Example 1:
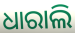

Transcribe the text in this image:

ଧାରାଲି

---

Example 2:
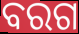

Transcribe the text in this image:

ବରଗ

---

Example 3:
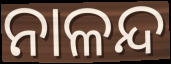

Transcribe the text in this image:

ନାଳନ୍ଦ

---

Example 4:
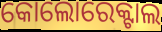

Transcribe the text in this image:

କୋଲୋରେକ୍ଟାଲ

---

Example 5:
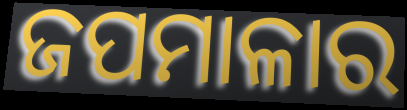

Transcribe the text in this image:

ଜପମାଳାର